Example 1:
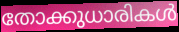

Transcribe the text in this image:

തോക്കുധാരികൾ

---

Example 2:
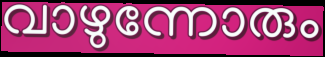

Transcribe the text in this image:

വാഴുന്നോരും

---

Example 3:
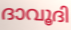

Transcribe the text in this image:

ദാവൂദി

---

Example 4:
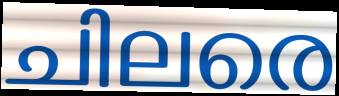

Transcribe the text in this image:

ചിലരെ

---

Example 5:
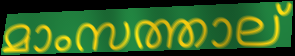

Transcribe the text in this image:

മാംസത്താല്